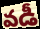
వడీ